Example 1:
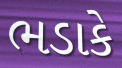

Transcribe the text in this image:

ભડાકે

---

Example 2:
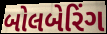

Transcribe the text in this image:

બોલબેરિંગ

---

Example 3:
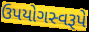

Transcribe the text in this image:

ઉપયોગસ્વરૂપે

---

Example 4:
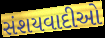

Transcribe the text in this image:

સંશયવાદીઓ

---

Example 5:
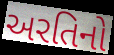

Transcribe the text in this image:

અરતિનો